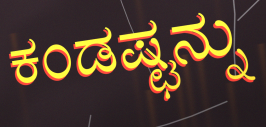
ಕಂಡಷ್ಟನ್ನು